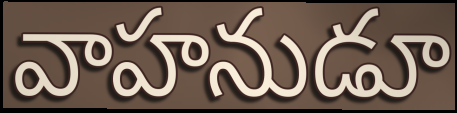
వాహనుడూ